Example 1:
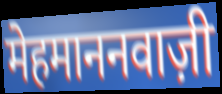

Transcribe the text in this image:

मेहमाननवाज़ी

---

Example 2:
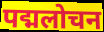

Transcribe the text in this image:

पद्मलोचन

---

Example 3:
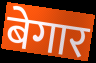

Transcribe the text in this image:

बेगार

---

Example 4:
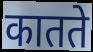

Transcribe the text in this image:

कातते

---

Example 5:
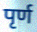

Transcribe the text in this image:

पृर्ण